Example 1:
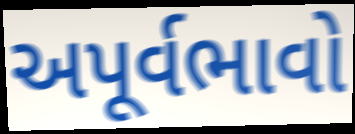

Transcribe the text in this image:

અપૂર્વભાવો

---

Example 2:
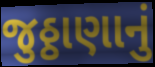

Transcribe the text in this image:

જુઠ્ઠાણાનું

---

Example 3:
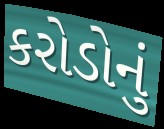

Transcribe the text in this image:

કરોડોનું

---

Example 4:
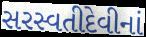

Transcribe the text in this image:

સરસ્વતીદેવીનાં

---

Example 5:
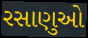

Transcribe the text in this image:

રસાણુઓ